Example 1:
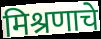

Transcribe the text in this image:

मिश्रणाचे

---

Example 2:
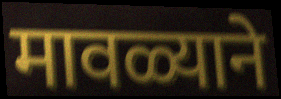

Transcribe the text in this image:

मावळ्याने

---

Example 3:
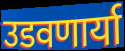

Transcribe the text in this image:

उडवणार्या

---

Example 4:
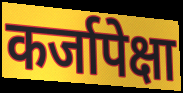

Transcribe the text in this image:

कर्जापेक्षा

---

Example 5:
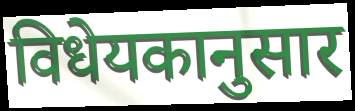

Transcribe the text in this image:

विधेयकानुसार